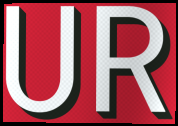
UR